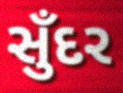
સુઁદર